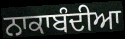
ਨਾਕਾਬੰਦੀਆ